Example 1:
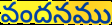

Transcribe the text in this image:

వందనము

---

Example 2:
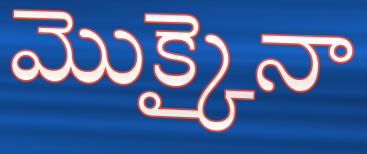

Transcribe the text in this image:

మొక్కైనా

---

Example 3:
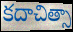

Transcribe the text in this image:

కదాచిత్సా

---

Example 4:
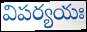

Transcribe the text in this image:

విపర్యయః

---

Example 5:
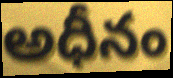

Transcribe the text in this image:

అధీనం